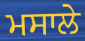
ਮਸਾਲੇ